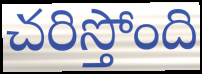
చరిస్తోంది